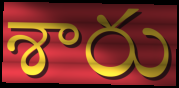
శారు